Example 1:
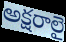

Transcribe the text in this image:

అక్షరాలై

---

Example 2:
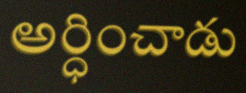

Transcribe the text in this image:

అర్ధించాడు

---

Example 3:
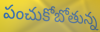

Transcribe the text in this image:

పంచుకోబోతున్న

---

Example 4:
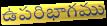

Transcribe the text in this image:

ఉపరిభాగము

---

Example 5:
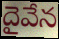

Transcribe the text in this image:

దైవేన